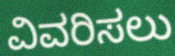
ವಿವರಿಸಲು